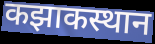
कझाकस्थान